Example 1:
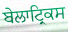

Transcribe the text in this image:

ਬੇਲਾਟ੍ਰਿਕਸ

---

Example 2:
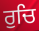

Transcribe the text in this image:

ਰੁਚਿ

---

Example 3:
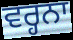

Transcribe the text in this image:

ਵਰ੍ਹਨਾ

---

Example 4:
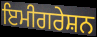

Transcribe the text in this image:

ਇਮੀਗਰੇਸ਼ਨ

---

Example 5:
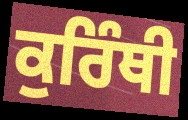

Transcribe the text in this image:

ਕੁਰਿੰਥੀ